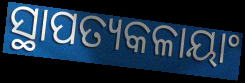
ସ୍ଥାପତ୍ୟକଳାୟାଂ